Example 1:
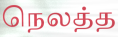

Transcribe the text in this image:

நெலத்த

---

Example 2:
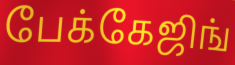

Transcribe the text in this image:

பேக்கேஜிங்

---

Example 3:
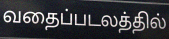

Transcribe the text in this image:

வதைப்படலத்தில்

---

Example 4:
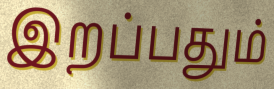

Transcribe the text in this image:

இறப்பதும்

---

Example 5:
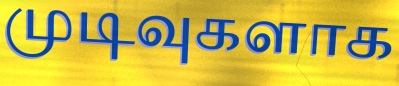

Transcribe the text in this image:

முடிவுகளாக